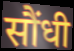
सौंधी